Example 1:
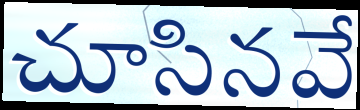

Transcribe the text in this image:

చూసినవే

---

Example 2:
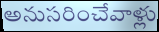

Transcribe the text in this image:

అనుసరించేవాళ్లు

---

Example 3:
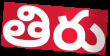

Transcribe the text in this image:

తిరు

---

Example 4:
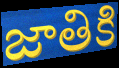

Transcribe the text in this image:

జాతికి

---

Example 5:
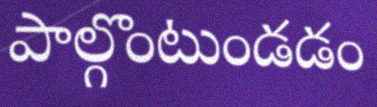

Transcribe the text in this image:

పాల్గొంటుండడం